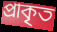
প্ৰাকৃত